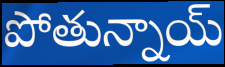
పోతున్నాయ్